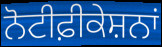
ਨੋਟੀਫ਼ੀਕੇਸ਼ਨਾਂ